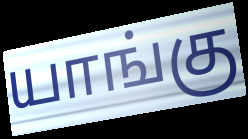
யாங்கு